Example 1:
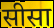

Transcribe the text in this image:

सीसा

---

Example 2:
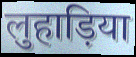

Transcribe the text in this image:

लुहाड़िया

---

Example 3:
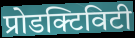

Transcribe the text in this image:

प्रोडक्टिविटी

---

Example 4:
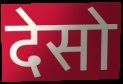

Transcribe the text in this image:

देसो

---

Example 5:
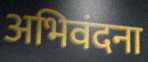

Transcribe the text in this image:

अभिवंदना